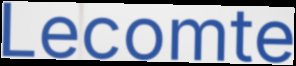
Lecomte